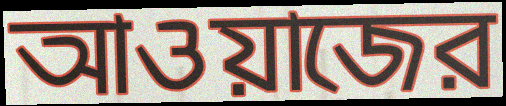
আওয়াজের